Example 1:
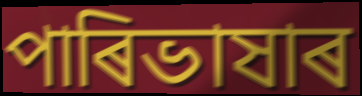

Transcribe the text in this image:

পাৰিভাষাৰ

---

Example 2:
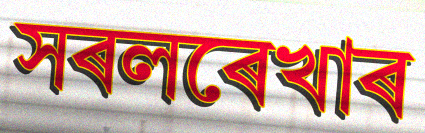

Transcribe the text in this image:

সৰলৰেখাৰ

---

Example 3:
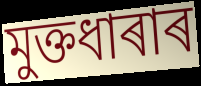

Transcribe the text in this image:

মুক্তধাৰাৰ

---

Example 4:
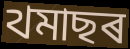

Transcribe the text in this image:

থমাছৰ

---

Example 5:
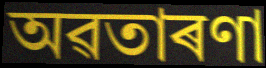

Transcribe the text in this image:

অৱতাৰণা